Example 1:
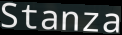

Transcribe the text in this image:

Stanza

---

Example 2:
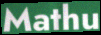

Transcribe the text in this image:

Mathu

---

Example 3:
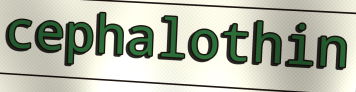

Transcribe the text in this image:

cephalothin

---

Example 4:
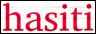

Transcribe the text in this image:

hasiti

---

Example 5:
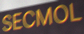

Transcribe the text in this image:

SECMOL